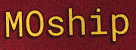
MOship